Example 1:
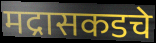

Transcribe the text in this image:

मद्रासकडचे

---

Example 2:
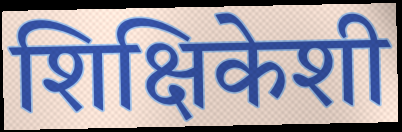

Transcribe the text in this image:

शिक्षिकेशी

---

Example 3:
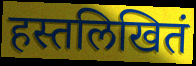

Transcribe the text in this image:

हस्तलिखितं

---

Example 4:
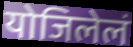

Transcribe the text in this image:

योजिलेलं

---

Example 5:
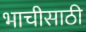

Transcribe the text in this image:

भाचीसाठी